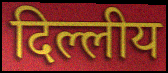
दिल्लीय